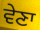
ਵੇਣਾ